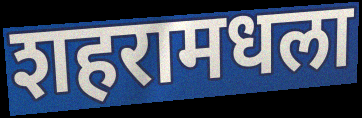
शहरामधला